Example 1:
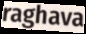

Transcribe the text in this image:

raghava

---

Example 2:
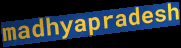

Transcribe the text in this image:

madhyapradesh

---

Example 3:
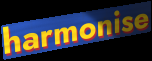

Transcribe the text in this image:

harmonise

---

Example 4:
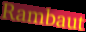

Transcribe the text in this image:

Rambaut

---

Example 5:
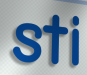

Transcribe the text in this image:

sti